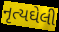
નૃત્યઘેલી